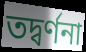
তদ্বর্ণনা